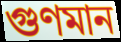
গুণমান